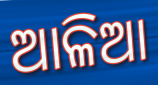
ଆଳିଆ